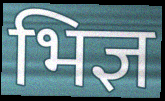
भिज्ञ